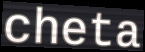
cheta